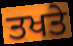
ਤਖਤੇ